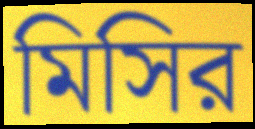
মিসির